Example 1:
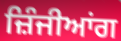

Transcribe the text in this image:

ਜ਼ਿੰਜੀਆਂਗ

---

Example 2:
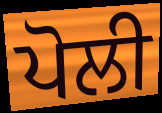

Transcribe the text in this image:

ਪੋਲੀ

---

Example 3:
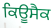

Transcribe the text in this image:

ਕਿਊਸੈਕ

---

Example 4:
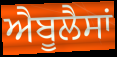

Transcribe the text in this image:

ਐਬੂਲੈਸਾਂ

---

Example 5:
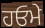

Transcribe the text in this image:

ਹਓਮੇ